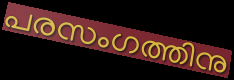
പരസംഗത്തിനു